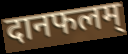
दानफलम्